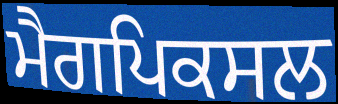
ਮੈਗਪਿਕਸਲ